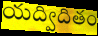
యద్విదితం